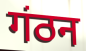
गंठन